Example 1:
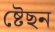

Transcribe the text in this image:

ষ্টেছন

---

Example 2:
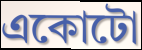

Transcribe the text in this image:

একোটো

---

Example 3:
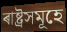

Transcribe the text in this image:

ৰাষ্ট্ৰসমূহে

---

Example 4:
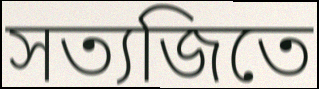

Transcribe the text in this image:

সত্যজিতে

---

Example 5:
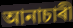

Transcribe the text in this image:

আনাচাৰী